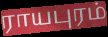
ராயபுரம்